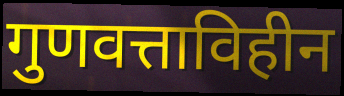
गुणवत्ताविहीन